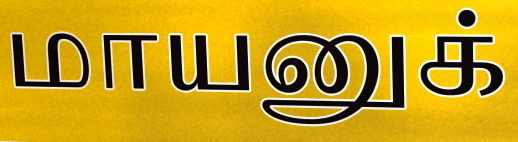
மாயனுக்